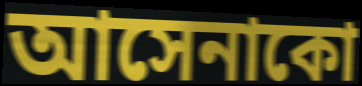
আসেনাকো